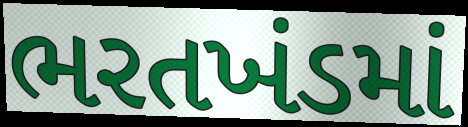
ભરતખંડમાં